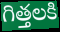
గిత్తలకి